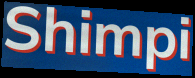
Shimpi